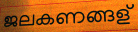
ജലകണങ്ങള്